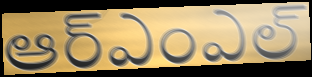
ఆర్ఎంఎల్